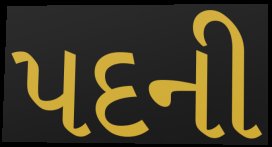
પદની